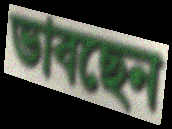
ভাবছেন